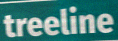
treeline